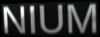
NIUM